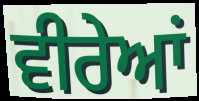
ਵੀਰੇਆਂ